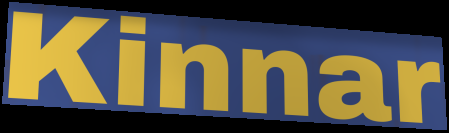
Kinnar